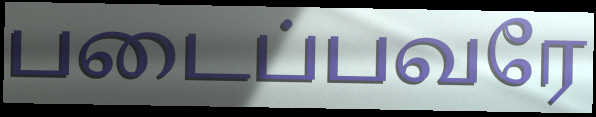
படைப்பவரே